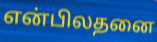
என்பிலதனை